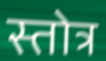
स्तोत्र